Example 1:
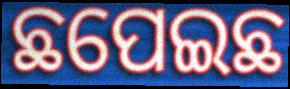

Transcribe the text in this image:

ଛପେଇଛ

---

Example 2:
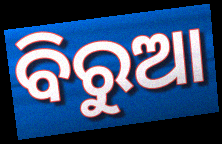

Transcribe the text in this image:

ବିରୁଆ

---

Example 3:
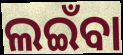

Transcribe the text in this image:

ଲଇଁବା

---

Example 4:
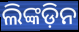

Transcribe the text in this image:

ଲିଙ୍କଡ଼ିନ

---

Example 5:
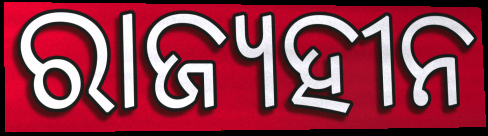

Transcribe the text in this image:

ରାଜ୍ୟହୀନ